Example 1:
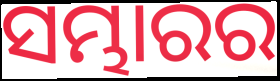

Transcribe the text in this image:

ସମ୍ଭାରର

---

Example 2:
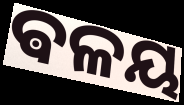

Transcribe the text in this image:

ଵଳୟ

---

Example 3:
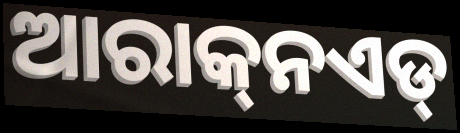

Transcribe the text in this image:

ଆରାକ୍‌ନଏଡ୍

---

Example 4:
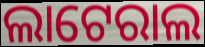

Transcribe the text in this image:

ଲାଟେରାଲ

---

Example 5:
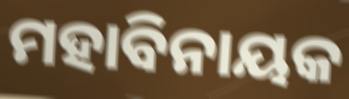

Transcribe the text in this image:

ମହାବିନାୟକ